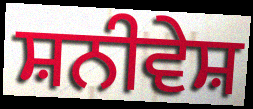
ਸ਼ਨੀਵੇਸ਼